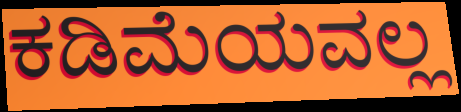
ಕಡಿಮೆಯವಲ್ಲ